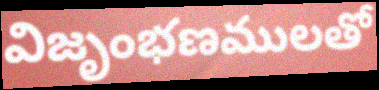
విజృంభణములతో